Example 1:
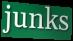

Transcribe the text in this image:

junks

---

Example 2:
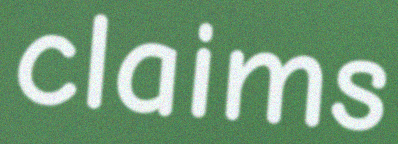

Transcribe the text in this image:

claims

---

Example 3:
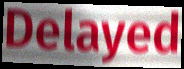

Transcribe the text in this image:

Delayed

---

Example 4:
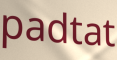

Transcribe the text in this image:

padtat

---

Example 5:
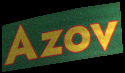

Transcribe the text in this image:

Azov